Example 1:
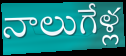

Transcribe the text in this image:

నాలుగేళ్ల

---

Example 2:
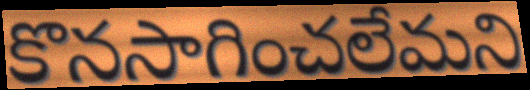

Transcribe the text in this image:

కొనసాగించలేమని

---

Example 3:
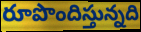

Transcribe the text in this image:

రూపొందిస్తున్నది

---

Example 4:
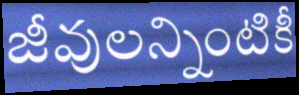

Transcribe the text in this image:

జీవులన్నింటికీ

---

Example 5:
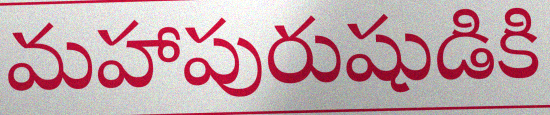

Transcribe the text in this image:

మహాపురుషుడికి